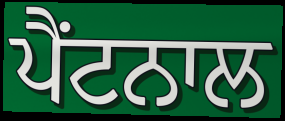
ਪੈਂਟਨਾਲ